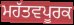
ਮਹੱਤਵਪੂਰਕ